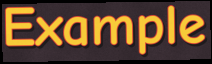
Example